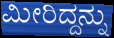
ಮೀರಿದ್ದನ್ನು